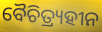
ବୈଚିତ୍ର୍ୟହୀନ